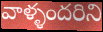
వాళ్ళందరిని